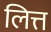
लित्त